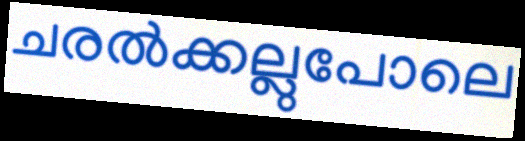
ചരൽക്കല്ലുപോലെ